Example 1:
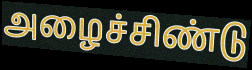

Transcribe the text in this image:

அழைச்சிண்டு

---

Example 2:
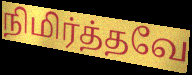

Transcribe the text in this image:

நிமிர்த்தவே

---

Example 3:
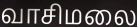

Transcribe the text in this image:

வாசிமலை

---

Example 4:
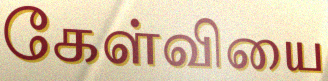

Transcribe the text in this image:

கேள்வியை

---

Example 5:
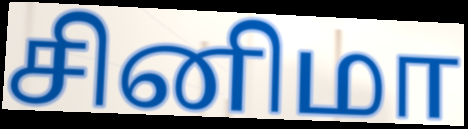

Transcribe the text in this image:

சினிமா